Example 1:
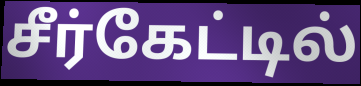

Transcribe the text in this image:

சீர்கேட்டில்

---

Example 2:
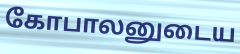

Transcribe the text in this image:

கோபாலனுடைய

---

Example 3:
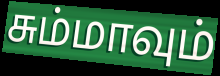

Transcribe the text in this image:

சும்மாவும்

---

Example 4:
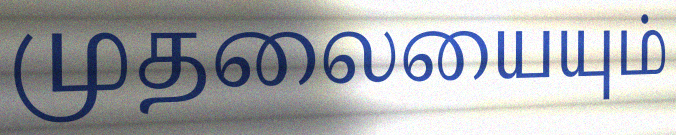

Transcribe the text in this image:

முதலையையும்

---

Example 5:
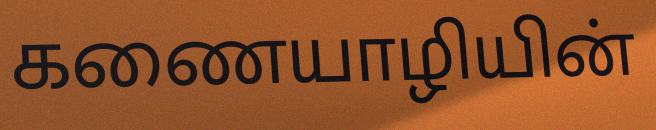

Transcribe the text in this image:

கணையாழியின்